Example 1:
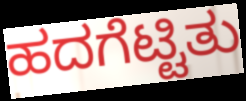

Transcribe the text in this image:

ಹದಗೆಟ್ಟಿತು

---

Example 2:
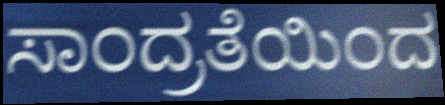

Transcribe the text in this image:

ಸಾಂದ್ರತೆಯಿಂದ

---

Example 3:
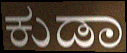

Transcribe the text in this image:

ಕುಡಾ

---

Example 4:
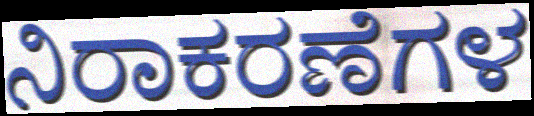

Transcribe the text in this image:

ನಿರಾಕರಣೆಗಳ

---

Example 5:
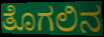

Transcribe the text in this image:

ತೊಗಲಿನ